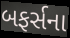
બફર્સના